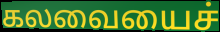
கலவையைச்